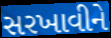
સરખાવીને